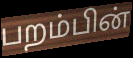
பறம்பின்